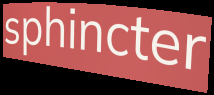
sphincter